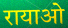
रायाओ